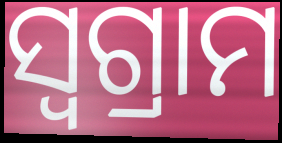
ସ୍ୱଗ୍ରାମ